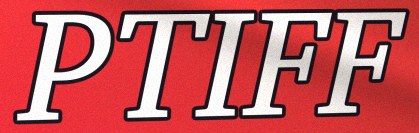
PTIFF